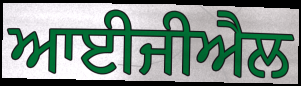
ਆਈਜੀਐਲ